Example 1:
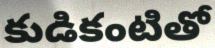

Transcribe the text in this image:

కుడికంటితో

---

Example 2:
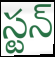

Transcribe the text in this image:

స్టన్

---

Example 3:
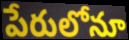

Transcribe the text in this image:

పేరులోనూ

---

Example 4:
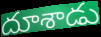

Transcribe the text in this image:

దూశాడు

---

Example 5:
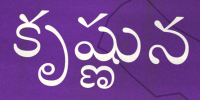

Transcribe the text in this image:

కృష్ణున